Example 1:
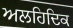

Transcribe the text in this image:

ਅਲਹਿਦਿਕ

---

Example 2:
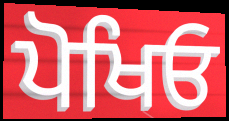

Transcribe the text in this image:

ਪੋਖਿਓ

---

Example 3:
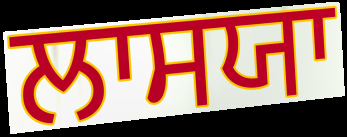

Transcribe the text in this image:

ਲਾਸਯਾ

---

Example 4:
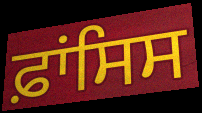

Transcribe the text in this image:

ਫ਼ਾਂਸਿਸ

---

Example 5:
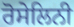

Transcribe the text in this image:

ਰੋਸੇਲਿਨੀ